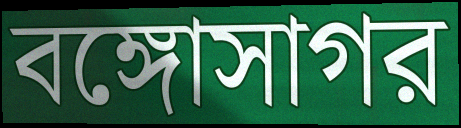
বঙ্গোসাগর